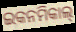
ଇକନମିକାଲ୍